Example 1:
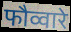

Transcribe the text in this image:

फौव्वारे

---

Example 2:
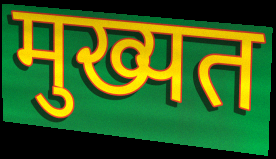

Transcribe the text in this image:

मुख्‍यत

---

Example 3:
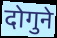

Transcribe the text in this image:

दोगुने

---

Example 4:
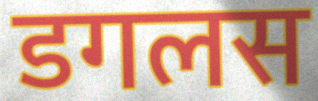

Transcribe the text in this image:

डगलस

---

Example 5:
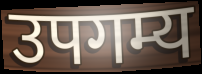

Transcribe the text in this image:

उपगम्य